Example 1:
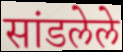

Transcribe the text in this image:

सांडलेले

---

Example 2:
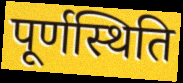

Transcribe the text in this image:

पूर्णस्थिति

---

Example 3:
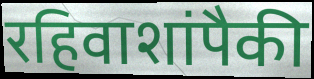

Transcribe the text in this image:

रहिवाशांपैकी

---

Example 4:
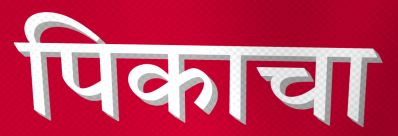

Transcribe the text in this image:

पिकाचा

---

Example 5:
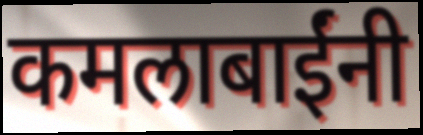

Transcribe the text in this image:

कमलाबाईंनी